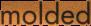
molded